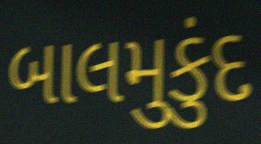
બાલમુકુંદ